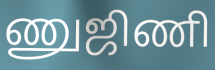
ணுஜிணி